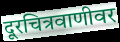
दूरचित्रवाणीवर